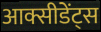
आक्सीडेंट्स